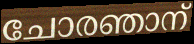
ചോരഞാന്